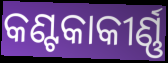
କଣ୍ଟକାକୀର୍ଣ୍ଣ